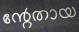
ന്റേതായ